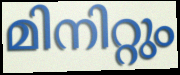
മിനിറ്റും